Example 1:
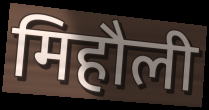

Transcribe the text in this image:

मिहौली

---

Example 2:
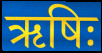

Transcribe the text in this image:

ऋषिः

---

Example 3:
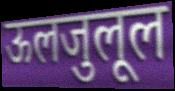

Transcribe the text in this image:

ऊलजुलूल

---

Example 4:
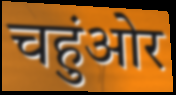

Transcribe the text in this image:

चहुंओर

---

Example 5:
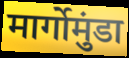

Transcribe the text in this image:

मार्गोमुंडा